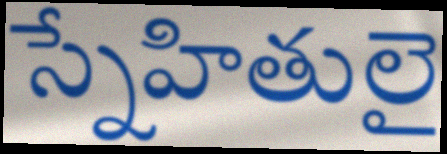
స్నేహితులై